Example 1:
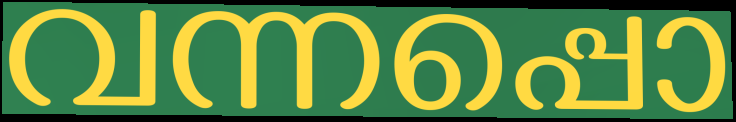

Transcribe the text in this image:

വന്നപ്പൊ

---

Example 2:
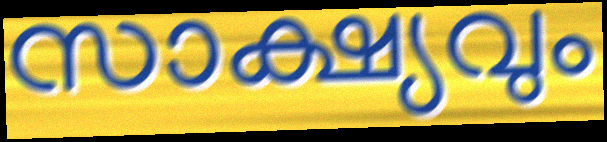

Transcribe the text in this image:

സാക്ഷ്യവും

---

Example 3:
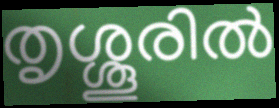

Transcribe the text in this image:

തൃശ്ശൂരിൽ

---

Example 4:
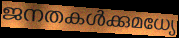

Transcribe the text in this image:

ജനതകൾക്കുമധ്യേ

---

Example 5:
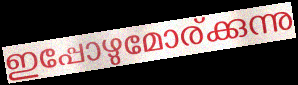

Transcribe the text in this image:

ഇപ്പോഴുമോര്ക്കുന്നു